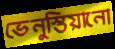
ভেনুস্তিয়ানো